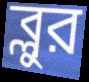
ব্লুর